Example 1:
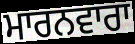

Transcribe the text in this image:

ਮਾਰਨਵਾਰਾ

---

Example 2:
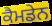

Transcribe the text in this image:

ਕੈਮਡੇਨ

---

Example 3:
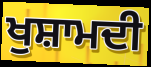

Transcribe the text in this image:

ਖੁਸ਼ਾਮਦੀ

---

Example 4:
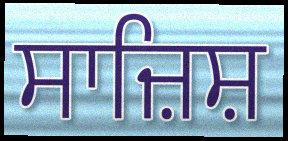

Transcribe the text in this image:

ਸਾਜ਼ਿਸ਼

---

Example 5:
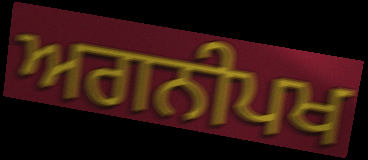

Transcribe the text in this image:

ਅਗਨੀਪਖ